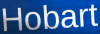
Hobart